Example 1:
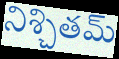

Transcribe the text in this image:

నిశ్చితమ్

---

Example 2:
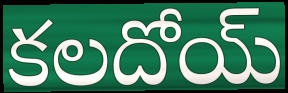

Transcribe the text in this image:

కలదోయ్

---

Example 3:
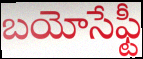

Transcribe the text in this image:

బయోసేఫ్టీ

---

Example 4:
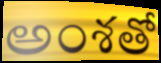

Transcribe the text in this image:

అంశతో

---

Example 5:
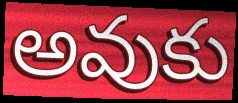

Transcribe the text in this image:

అవుకు